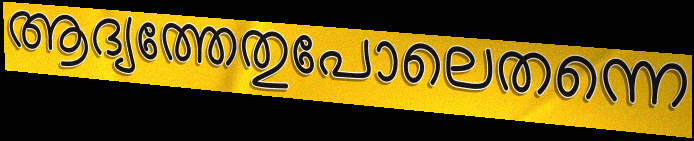
ആദ്യത്തേതുപോലെതന്നെ